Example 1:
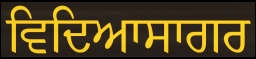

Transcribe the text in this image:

ਵਿਦਿਆਸਾਗਰ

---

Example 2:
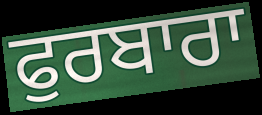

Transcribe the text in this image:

ਫੁਰਬਾਰਾ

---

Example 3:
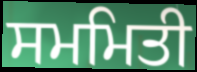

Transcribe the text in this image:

ਸਮਮਿਤੀ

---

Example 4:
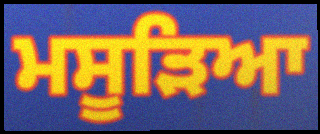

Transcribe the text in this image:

ਮਸੂੜਿਆ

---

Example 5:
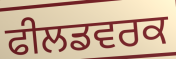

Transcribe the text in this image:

ਫੀਲਡਵਰਕ